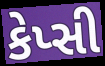
કેપ્સી